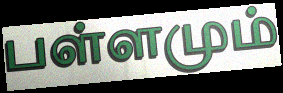
பள்ளமும்